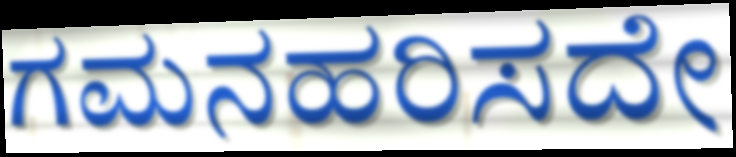
ಗಮನಹರಿಸದೇ